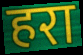
हरा